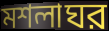
মশলাঘর